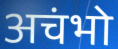
अचंभो